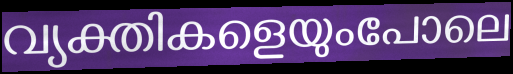
വ്യക്തികളെയുംപോലെ